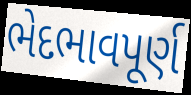
ભેદભાવપૂર્ણ